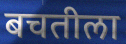
बचतीला